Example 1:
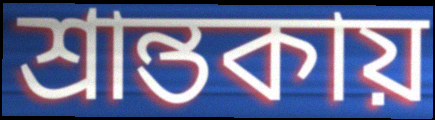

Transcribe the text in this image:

শ্রান্তকায়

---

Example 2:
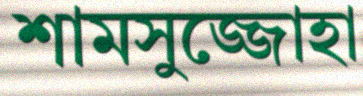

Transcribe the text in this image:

শামসুজ্জোহা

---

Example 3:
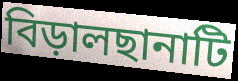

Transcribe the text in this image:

বিড়ালছানাটি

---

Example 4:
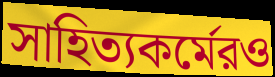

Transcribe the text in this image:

সাহিত্যকর্মেরও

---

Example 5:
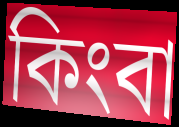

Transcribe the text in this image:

কিংবা